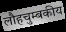
लौहचुम्बकीय